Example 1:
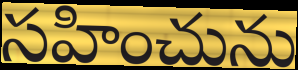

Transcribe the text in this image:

సహించును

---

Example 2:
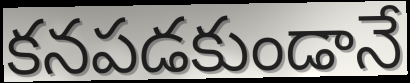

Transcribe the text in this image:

కనపడకుండానే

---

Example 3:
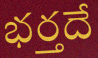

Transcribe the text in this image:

భర్తదే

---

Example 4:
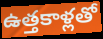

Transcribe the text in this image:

ఉత్తకాళ్లతో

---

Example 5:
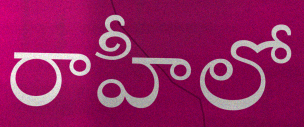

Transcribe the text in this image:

రాహీలో